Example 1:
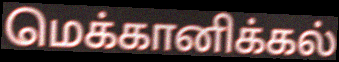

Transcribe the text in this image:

மெக்கானிக்கல்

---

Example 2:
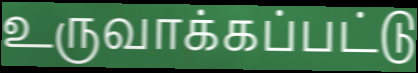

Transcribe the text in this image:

உருவாக்கப்பட்டு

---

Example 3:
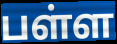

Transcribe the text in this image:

பள்ள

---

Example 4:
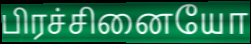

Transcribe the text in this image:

பிரச்சினையோ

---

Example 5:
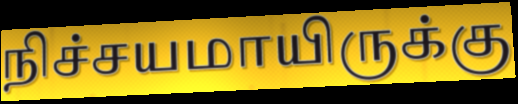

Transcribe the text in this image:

நிச்சயமாயிருக்கு